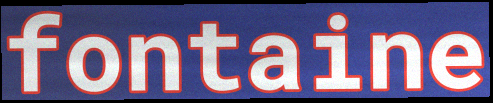
fontaine